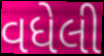
વધેલી